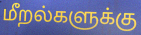
மீறல்களுக்கு